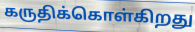
கருதிக்கொள்கிறது